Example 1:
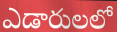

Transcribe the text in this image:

ఎడారులలో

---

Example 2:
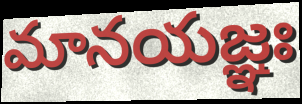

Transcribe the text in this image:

మానయజ్ఞః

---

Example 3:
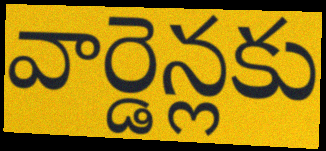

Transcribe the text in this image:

వార్డెన్లకు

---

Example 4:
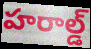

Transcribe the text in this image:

హరాల్డ్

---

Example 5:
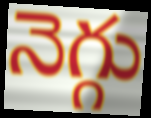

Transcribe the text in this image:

నెగ్గు